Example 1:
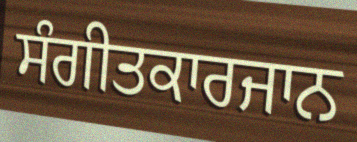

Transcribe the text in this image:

ਸੰਗੀਤਕਾਰਜਾਨ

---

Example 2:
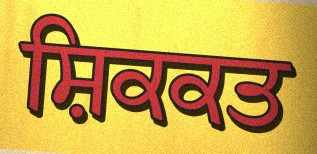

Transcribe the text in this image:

ਸ਼ਿਕਕਤ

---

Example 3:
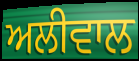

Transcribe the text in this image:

ਅਲੀਵਾਲ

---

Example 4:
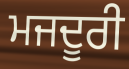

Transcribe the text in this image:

ਮਜਦੂਰੀ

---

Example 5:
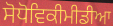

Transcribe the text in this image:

ਸੋਧੋਵਿਕੀਮੀਡੀਆ